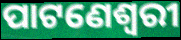
ପାଟଣେଶ୍ୱରୀ